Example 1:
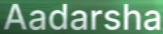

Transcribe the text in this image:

Aadarsha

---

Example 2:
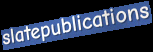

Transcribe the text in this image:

slatepublications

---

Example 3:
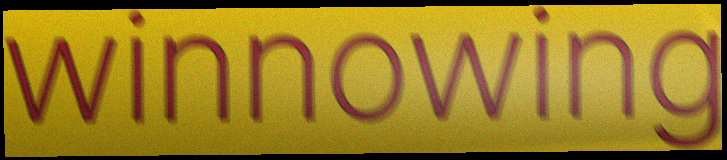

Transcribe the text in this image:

winnowing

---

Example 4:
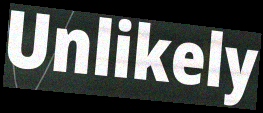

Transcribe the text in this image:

Unlikely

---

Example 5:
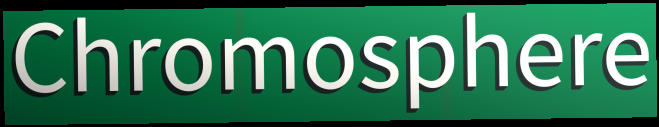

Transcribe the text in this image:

Chromosphere